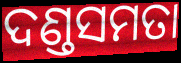
ଦଣ୍ଡସମତା